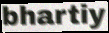
bhartiy